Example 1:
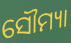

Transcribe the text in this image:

ସୌମ୍ୟା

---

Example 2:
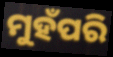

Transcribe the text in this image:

ମୁହଁପରି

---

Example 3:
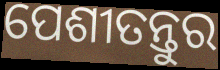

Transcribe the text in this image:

ପେଶୀତନ୍ତୁର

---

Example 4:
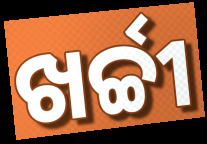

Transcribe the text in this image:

ଖର୍ଚ୍ଚୀ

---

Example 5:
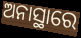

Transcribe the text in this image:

ଅନାସ୍ଥାରେ